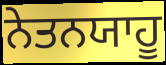
ਨੇਤਨਯਾਹੂ